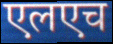
एलएच